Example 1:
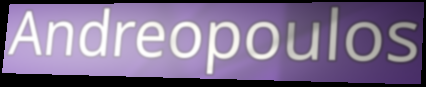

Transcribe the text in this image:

Andreopoulos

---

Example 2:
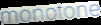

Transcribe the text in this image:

monotone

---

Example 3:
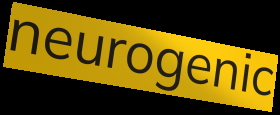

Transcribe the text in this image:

neurogenic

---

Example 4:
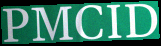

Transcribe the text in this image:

PMCID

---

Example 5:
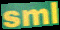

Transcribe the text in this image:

sml